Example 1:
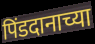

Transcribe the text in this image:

पिंडदानाच्या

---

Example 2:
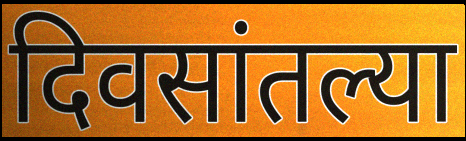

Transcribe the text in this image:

दिवसांतल्या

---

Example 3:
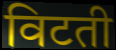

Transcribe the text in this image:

विटती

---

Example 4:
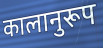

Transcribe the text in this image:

कालानुरूप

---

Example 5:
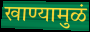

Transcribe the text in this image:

खाण्यामुळं